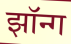
झॉन्ग